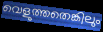
വെളുത്തതെങ്കിലും